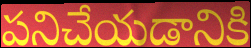
పనిచేయడానికి